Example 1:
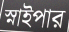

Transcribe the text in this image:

স্নাইপার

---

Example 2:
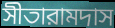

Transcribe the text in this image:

সীতারামদাস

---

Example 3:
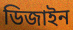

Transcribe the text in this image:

ডিজাইন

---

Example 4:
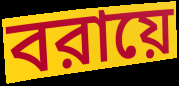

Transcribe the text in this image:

বরায়ে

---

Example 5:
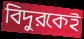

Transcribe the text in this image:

বিদুরকেই